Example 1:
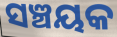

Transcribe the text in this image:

ସଞ୍ଚୟକ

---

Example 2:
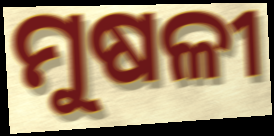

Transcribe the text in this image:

ମୁଷଳୀ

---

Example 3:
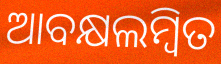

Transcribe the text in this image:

ଆବକ୍ଷଲମ୍ବିତ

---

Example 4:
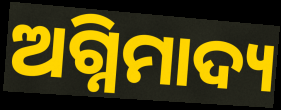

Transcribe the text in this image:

ଅଗ୍ନିମାଦ୍ୟ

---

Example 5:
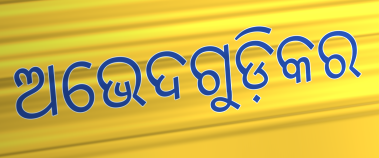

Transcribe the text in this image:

ଅଭେଦଗୁଡ଼ିକର